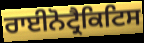
ਰਾਈਨੋਟ੍ਰੈਕਿਟਿਸ